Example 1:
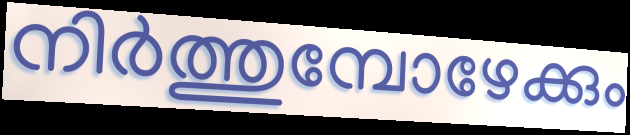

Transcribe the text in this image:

നിർത്തുമ്പോഴേക്കും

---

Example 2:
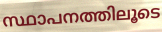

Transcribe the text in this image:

സ്ഥാപനത്തിലൂടെ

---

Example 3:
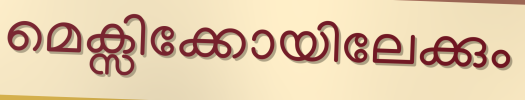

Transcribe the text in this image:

മെക്സിക്കോയിലേക്കും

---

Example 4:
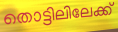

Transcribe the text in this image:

തൊട്ടിലിലേക്ക്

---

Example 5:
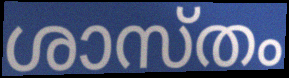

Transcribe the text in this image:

ശാസ്തം